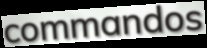
commandos